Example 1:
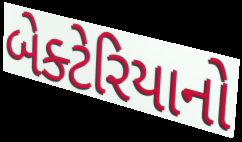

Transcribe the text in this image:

બેક્ટેરિયાનો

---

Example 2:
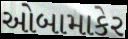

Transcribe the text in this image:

ઓબામાકેર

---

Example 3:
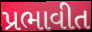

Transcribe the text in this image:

પ્રભાવીત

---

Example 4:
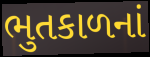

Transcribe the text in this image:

ભુતકાળનાં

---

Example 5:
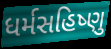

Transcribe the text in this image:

ધર્મસહિષ્ણુ